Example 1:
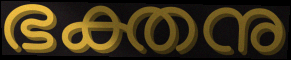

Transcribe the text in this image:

ഭക്തനു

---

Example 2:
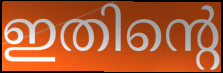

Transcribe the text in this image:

ഇതിന്റെ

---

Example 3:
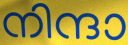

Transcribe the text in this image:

നിന്ദാ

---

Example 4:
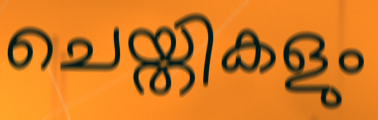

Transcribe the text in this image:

ചെയ്തികളും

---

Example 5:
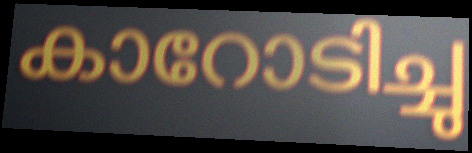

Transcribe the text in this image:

കാറോടിച്ചു